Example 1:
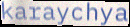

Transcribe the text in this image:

karaychya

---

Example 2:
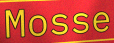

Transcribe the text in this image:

Mosse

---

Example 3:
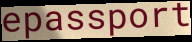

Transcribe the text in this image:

epassport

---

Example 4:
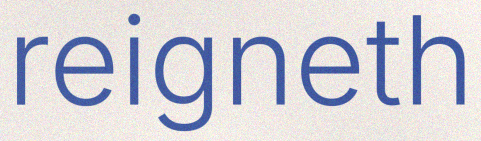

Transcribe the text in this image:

reigneth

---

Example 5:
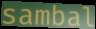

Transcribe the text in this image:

sambal